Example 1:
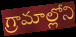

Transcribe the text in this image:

గ్రామాల్లోని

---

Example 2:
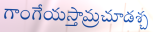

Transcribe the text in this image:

గాంగేయస్తామ్రచూడశ్చ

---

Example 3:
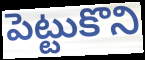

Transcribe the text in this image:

పెట్టుకొని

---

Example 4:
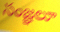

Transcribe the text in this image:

సంజ్ఞలూ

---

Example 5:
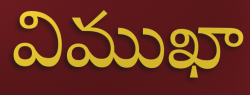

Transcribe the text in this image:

విముఖా